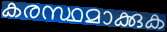
കരസ്ഥമാക്കുക